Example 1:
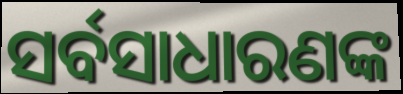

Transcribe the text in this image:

ସର୍ବସାଧାରଣଙ୍କ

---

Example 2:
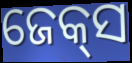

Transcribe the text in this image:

ଜେକ୍‍ସ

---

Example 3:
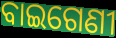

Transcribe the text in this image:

ବାଇଗେଣୀ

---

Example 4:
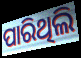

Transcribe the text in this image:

ପାରିଥିଲି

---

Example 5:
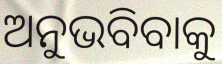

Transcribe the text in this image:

ଅନୁଭବିବାକୁ